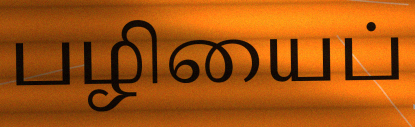
பழியைப்